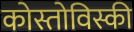
कोस्तोविस्की